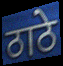
ठाठे